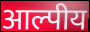
आल्पीय